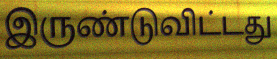
இருண்டுவிட்டது